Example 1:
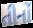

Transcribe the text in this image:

તીનોં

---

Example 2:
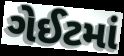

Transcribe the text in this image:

ગેઈટમાં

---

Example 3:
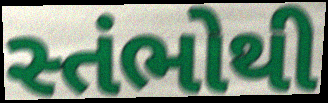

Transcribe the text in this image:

સ્તંભોથી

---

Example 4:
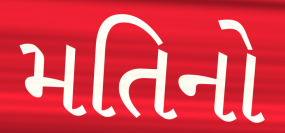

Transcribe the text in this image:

મતિનો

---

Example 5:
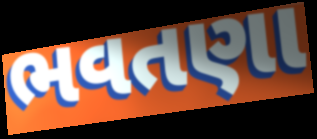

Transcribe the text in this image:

ભવતણા